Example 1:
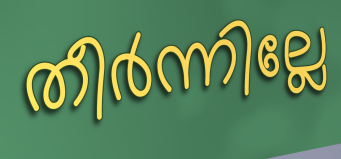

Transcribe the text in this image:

തീർന്നില്ലേ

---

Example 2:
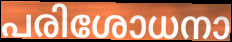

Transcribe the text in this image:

പരിശോധനാ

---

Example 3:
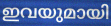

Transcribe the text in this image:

ഇവയുമായി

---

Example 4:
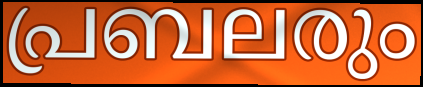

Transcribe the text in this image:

പ്രബലരും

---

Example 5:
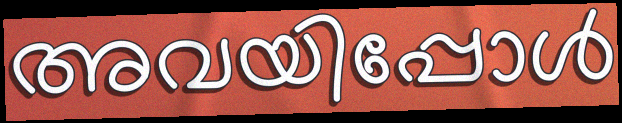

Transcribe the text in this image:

അവയിപ്പോൾ